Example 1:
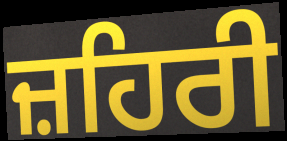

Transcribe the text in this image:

ਜ਼ਹਿਰੀ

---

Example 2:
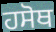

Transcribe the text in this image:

ਹਸੋਥ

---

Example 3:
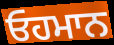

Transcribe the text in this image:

ਓਹਮਾਨ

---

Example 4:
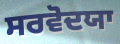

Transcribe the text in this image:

ਸਰਵੋਦਯਾ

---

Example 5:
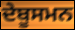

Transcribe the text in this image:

ਦੇਬੂਸਮਨ